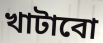
খাটাবো